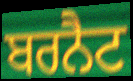
ਬਰਨੈਟ